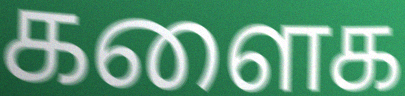
களைக